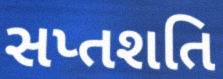
સપ્તશતિ